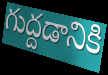
గుద్దడానికి